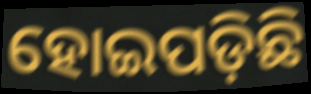
ହୋଇପଡ଼ିଛି